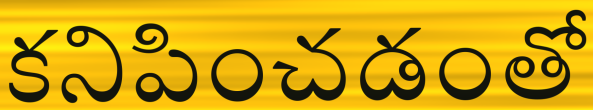
కనిపించడంతో